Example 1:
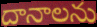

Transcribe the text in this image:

దానాలను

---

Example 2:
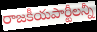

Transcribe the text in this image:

రాజకీయపార్టీలన్నీ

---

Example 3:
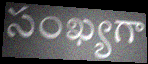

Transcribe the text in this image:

సంఖ్యగా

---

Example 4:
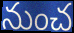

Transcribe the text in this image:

నుంచ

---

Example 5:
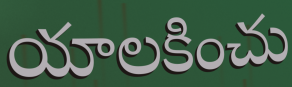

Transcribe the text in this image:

యాలకించు